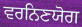
ਵਰਨਿਣਯੋਗ